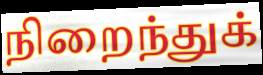
நிறைந்துக்